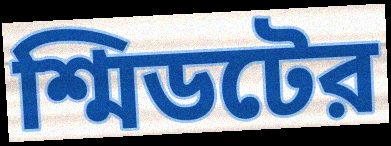
শ্মিডটের